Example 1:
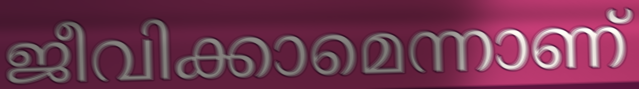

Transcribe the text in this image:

ജീവിക്കാമെന്നാണ്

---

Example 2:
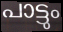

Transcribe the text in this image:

പാട്ടും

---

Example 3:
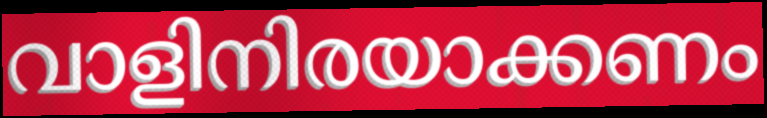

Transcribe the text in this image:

വാളിനിരയാക്കണം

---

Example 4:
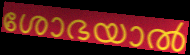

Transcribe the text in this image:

ശോഭയാൽ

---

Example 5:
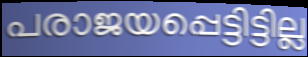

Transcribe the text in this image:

പരാജയപ്പെട്ടിട്ടില്ല